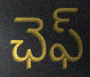
ఛెఫ్